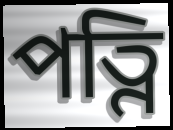
পত্নি